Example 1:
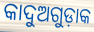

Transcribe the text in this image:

କାଦୁଅଗୁଡ଼ାକ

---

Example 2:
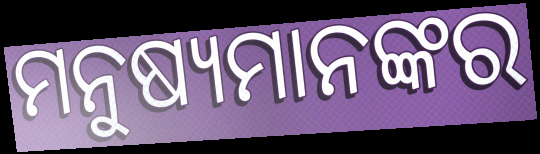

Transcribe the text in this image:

ମନୁଷ୍ୟମାନଙ୍କର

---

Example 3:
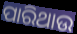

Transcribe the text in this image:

ପାରିଥାଉ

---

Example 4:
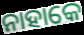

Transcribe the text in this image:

ନାହାକେ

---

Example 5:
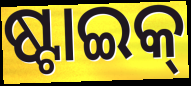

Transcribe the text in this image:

ଷ୍ଟାଇକ୍